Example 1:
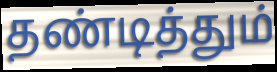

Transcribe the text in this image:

தண்டித்தும்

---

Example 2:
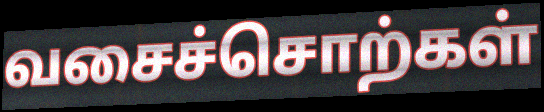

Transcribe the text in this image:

வசைச்சொற்கள்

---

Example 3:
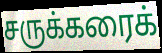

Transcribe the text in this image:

சருக்கரைக்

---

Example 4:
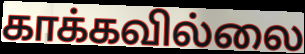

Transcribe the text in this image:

காக்கவில்லை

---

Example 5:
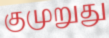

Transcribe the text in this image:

குமுறுது